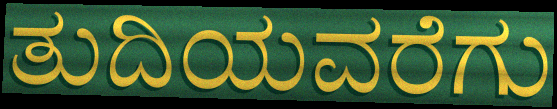
ತುದಿಯವರೆಗು